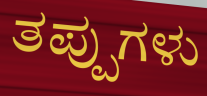
ತಪ್ಪುಗಳು